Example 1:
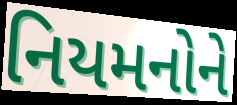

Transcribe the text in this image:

નિયમનોને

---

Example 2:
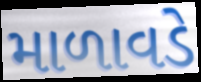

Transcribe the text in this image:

માળાવડે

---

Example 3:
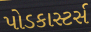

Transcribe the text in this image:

પોડકાસ્ટર્સ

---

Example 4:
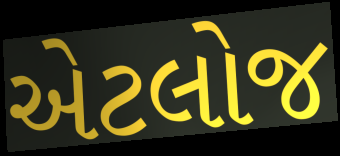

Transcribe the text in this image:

એટલોજ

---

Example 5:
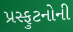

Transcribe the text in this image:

પ્રસ્ફુટનોની